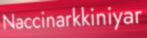
Naccinarkkiniyar